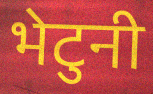
भेटुनी